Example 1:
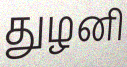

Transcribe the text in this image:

துழனி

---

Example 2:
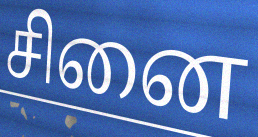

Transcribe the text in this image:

சினை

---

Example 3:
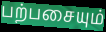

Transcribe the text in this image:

பற்பசையும்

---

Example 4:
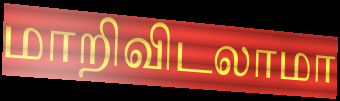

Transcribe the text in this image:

மாறிவிடலாமா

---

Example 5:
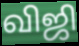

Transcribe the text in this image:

விஜி